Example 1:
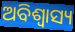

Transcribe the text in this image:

ଅବିଶ୍ୱାସ୍ୟ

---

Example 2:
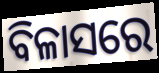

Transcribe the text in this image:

ବିଳାସରେ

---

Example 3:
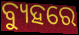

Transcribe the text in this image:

ବ୍ୟୁହରେ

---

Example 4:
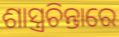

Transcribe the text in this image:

ଶାସ୍ତ୍ରଚିନ୍ତାରେ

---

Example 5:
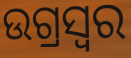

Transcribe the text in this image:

ଉଗ୍ରସ୍ୱର